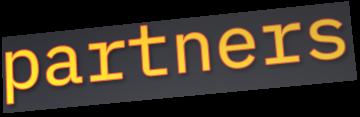
partners